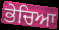
ਭੇਚਿਆ